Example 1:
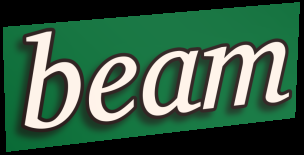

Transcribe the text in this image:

beam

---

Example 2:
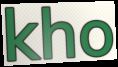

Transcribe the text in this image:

kho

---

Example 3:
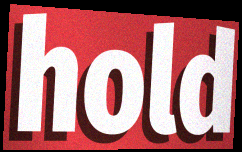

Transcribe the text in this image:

hold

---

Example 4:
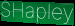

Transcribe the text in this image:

SHapley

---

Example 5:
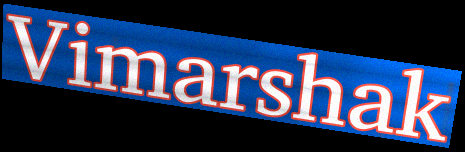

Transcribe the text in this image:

Vimarshak